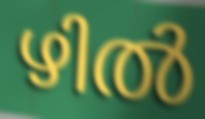
ഴിൽ